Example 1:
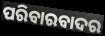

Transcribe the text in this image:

ପରିବାରବାଦର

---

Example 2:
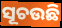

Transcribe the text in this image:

ସୂଚଉଛି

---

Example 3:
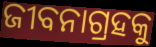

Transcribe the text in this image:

ଜୀବନାଗ୍ରହକୁ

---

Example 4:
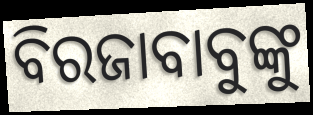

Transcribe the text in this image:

ବିରଜାବାବୁଙ୍କୁ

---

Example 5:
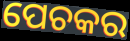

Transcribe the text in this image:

ପେଚକର